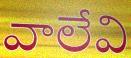
వాలేవి